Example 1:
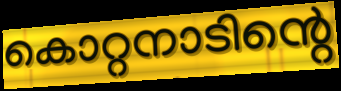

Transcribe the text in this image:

കൊറ്റനാടിന്റെ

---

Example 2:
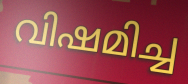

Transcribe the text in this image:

വിഷമിച്ച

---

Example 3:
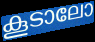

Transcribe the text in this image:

കൂടാലോ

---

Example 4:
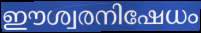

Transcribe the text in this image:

ഈശ്വരനിഷേധം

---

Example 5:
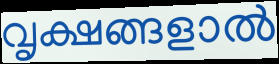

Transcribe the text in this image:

വൃക്ഷങ്ങളാൽ